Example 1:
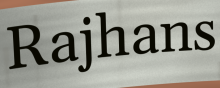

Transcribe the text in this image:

Rajhans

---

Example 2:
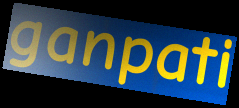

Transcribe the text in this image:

ganpati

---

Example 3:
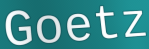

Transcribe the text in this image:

Goetz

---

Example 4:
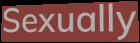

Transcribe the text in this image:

Sexually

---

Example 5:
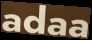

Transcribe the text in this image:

adaa